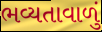
ભવ્યતાવાળું